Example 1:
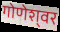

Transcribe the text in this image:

गोणेश्वर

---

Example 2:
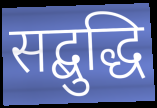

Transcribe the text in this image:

सद्बुद्धि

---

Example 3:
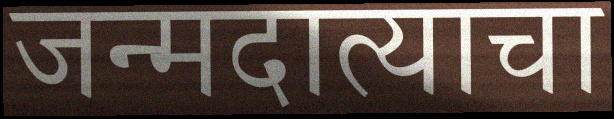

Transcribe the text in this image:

जन्मदात्याचा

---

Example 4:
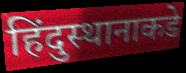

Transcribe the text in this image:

हिंदुस्थानाकडे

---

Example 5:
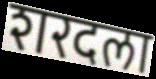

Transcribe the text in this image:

शरदला